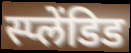
स्प्लेंडिड